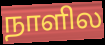
நாளில